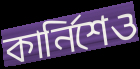
কার্নিশেও